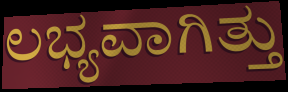
ಲಭ್ಯವಾಗಿತ್ತು